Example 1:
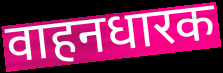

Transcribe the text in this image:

वाहनधारक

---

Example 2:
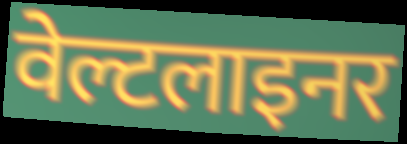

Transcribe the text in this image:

वेल्टलाइनर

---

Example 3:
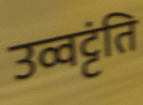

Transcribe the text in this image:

उव्वट्टंति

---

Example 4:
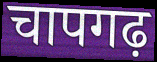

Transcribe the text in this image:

चापगढ़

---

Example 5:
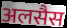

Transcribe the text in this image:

अलसैस